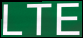
LTE